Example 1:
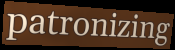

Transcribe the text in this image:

patronizing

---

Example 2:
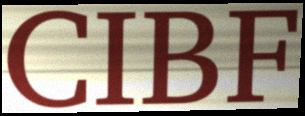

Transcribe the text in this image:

CIBF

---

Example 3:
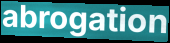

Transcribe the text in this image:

abrogation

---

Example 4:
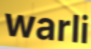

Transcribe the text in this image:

warli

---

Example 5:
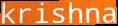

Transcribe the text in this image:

krishna